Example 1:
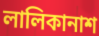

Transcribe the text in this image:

লালিকানাশ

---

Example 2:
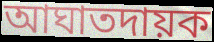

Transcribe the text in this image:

আঘাতদায়ক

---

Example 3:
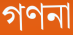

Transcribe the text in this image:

গণনা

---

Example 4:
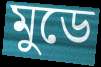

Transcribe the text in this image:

মুডে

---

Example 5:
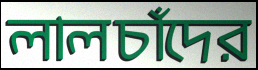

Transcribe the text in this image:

লালচাঁদের